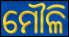
ମୌଳି